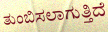
ತುಂಬಿಸಲಾಗುತ್ತಿದೆ